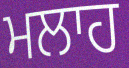
ਮਲਾਹ